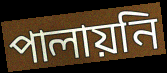
পালায়নি